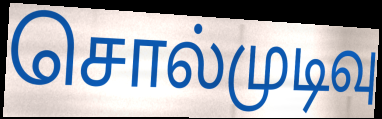
சொல்முடிவு